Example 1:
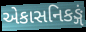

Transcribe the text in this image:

એકાસનિકઙ્ગં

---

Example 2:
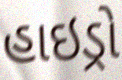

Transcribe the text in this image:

હાઇડ્રો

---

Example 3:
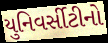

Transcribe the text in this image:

યુનિવર્સીટીનો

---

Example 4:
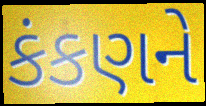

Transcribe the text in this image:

કંકણને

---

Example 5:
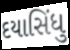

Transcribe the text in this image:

દયાસિંધુ